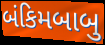
બંકિમબાબુ